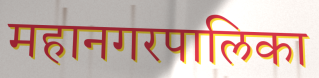
महानगरपालिका